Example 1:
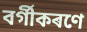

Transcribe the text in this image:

বৰ্গীকৰণে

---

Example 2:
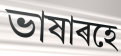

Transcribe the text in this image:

ভাষাৰহে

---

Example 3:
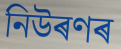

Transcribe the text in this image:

নিউৰণৰ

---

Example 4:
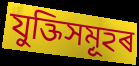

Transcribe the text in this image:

যুক্তিসমূহৰ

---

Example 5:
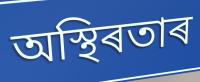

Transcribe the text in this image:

অস্থিৰতাৰ